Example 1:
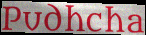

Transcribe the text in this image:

Pudhcha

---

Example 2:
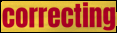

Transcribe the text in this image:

correcting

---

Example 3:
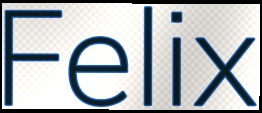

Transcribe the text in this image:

Felix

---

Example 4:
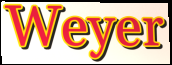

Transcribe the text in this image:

Weyer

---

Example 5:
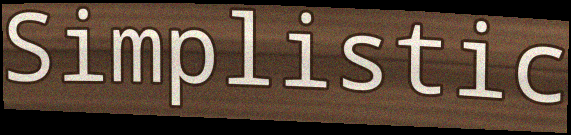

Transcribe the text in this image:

Simplistic